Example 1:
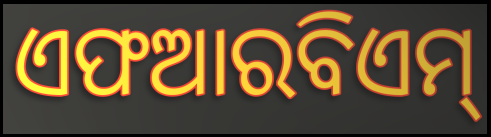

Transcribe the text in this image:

ଏଫଆରବିଏମ୍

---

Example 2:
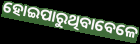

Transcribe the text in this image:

ହୋଇପାରୁଥିବାବେଳେ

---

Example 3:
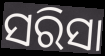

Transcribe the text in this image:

ସରିସା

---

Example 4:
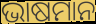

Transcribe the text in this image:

ଭାଷମାନ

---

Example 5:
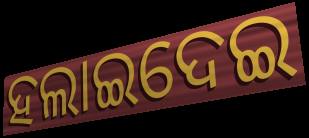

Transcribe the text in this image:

ହଲାଇଦେଇ